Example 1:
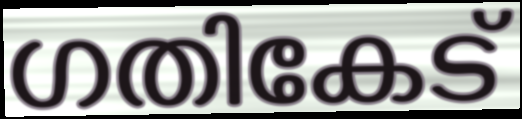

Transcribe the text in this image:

ഗതികേട്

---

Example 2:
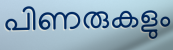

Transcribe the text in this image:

പിണരുകളും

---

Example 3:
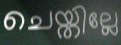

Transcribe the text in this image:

ചെയ്തില്ലേ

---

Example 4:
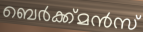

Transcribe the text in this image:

ബെർക്ക്മൻസ്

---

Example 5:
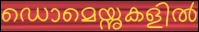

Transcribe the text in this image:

ഡൊമെയ്നുകളിൽ